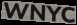
WNYC